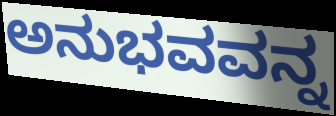
ಅನುಭವವನ್ನ